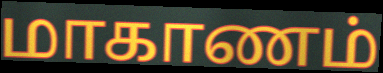
மாகாணம்